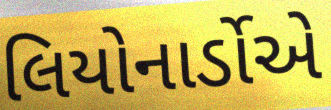
લિયોનાર્ડોએ